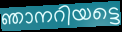
ഞാനറിയട്ടെ